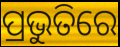
ପ୍ରଭୁତିରେ